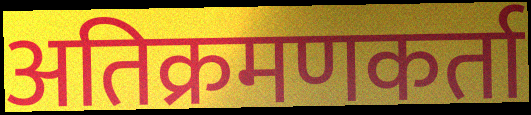
अतिक्रमणकर्ता